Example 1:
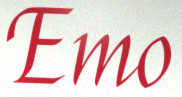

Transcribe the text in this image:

Emo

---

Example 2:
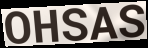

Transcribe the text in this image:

OHSAS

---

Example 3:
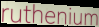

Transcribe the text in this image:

ruthenium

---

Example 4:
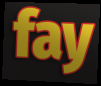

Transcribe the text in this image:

fay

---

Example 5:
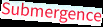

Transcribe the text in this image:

Submergence